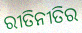
ରୀତିନୀତିର